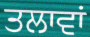
ਤਲਾਵਾਂ